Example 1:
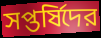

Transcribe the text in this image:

সপ্তর্ষিদের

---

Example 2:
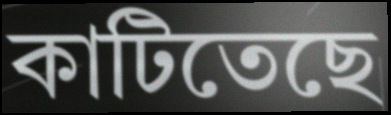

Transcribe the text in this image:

কাটিতেছে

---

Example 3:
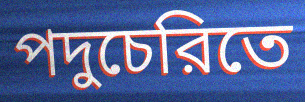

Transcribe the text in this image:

পদুচেরিতে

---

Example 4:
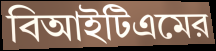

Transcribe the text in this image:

বিআইটিএমের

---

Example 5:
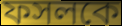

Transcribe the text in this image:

ফসলকে